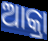
ଆକ୍ରା